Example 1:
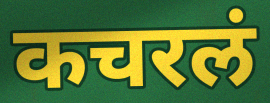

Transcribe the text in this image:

कचरलं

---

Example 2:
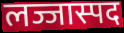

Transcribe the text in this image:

लज्जास्पद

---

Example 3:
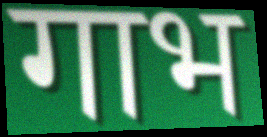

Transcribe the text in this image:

गाभ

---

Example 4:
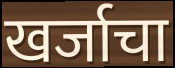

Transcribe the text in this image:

खर्जाचा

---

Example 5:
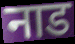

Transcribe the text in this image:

नाड